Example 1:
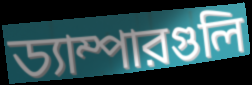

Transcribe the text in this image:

ড্যাম্পারগুলি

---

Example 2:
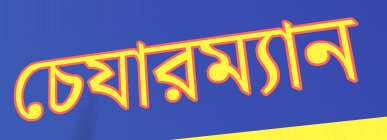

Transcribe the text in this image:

চেযারম্যান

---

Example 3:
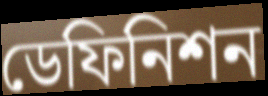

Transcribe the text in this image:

ডেফিনিশন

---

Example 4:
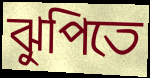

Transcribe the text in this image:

ঝুপিতে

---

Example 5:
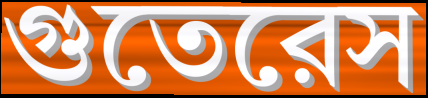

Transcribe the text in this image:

গুতেরেস